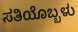
ಸತಿಯೊಬ್ಬಳು